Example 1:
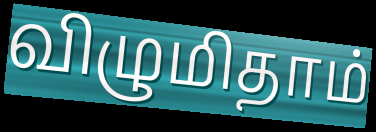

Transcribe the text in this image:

விழுமிதாம்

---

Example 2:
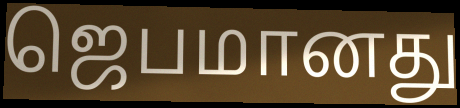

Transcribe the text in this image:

ஜெபமானது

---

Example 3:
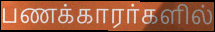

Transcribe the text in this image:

பணக்காரர்களில்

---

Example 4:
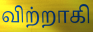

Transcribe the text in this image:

விற்றாகி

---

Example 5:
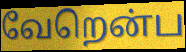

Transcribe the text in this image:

வேறென்ப